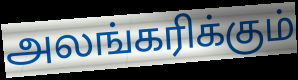
அலங்கரிக்கும்